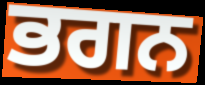
ਭਗਨ